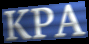
KPA